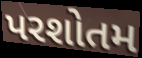
પરશોતમ